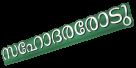
സഹോദരരോടു